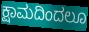
ಕ್ಷಾಮದಿಂದಲೂ